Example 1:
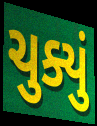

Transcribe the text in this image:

ચુક્યું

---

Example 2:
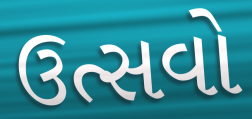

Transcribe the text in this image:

ઉત્સવો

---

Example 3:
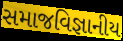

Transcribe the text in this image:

સમાજવિજ્ઞાનીય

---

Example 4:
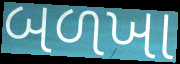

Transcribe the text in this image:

બળખા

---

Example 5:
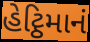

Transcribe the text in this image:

હેટ્ઠિમાનં